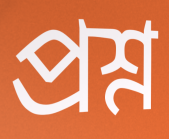
প্রশ্ন